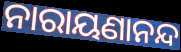
ନାରାୟଣାନନ୍ଦ